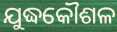
ଯୁଦ୍ଧକୌଶଳ